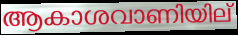
ആകാശവാണിയില്